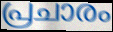
പ്രചാരം